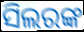
ସିଲରଙ୍କ